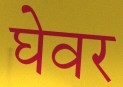
घेवर